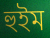
হুইম